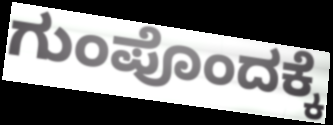
ಗುಂಪೊಂದಕ್ಕೆ